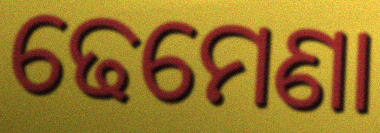
ଢେମେଣା